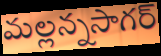
మల్లన్నసాగర్